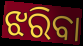
ଝରିବା